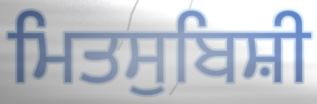
ਮਿਤਸੁਬਿਸ਼ੀ